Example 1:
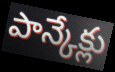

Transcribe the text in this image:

పాన్కేక్లు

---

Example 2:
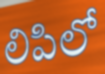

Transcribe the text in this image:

లిపిలో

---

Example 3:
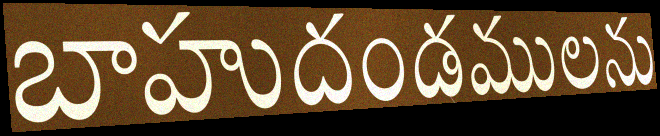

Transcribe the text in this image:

బాహుదండములను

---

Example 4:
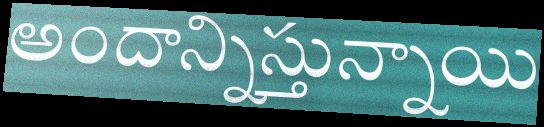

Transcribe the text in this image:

అందాన్నిస్తున్నాయి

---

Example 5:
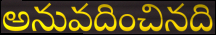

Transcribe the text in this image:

అనువదించినది